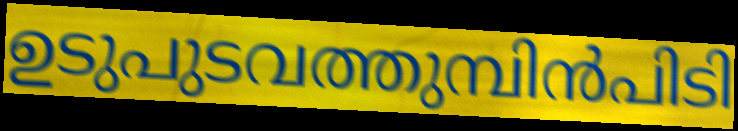
ഉടുപുടവത്തുമ്പിൻപിടി